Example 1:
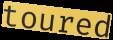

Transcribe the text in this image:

toured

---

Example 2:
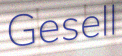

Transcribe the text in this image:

Gesell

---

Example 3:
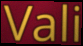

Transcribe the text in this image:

Vali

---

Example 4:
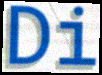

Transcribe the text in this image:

Di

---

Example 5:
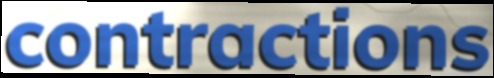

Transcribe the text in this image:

contractions